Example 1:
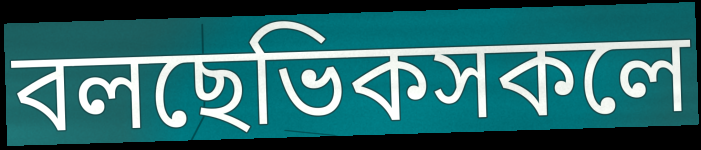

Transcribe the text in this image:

বলছেভিকসকলে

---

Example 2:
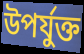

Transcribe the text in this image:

উপৰ্যুক্ত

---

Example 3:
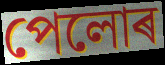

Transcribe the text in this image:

পেলোৰ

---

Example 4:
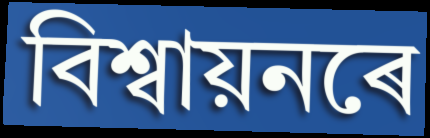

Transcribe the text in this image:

বিশ্বায়নৰে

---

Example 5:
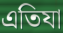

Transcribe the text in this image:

এতিযা